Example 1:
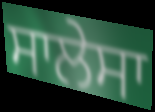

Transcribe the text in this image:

ਸਾਲੇਸਾ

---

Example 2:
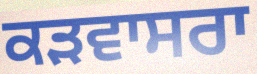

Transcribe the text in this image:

ਕੜਵਾਸਰਾ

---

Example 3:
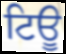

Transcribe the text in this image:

ਟਿਊ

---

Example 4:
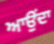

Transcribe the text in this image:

ਆਉੰਦਾ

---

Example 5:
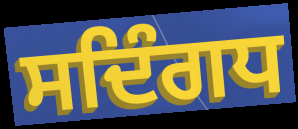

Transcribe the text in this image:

ਸਦਿੰਗਧ